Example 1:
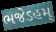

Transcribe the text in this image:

ભજેઽહમ્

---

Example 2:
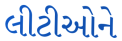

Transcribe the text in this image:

લીટીઓને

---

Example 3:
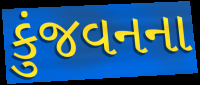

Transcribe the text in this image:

કુંજવનના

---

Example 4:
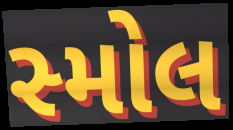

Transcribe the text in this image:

સ્મોલ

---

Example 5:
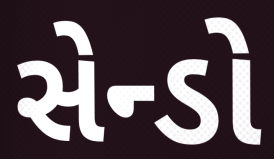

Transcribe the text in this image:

સેન્ડો